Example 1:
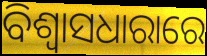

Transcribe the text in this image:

ବିଶ୍ଵାସଧାରାରେ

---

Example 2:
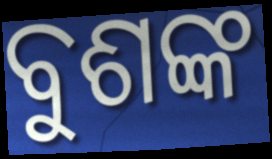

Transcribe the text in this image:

ବୁଶଙ୍କ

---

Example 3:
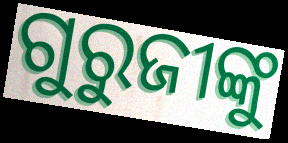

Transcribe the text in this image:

ଗୁରୁଜୀଙ୍କୁ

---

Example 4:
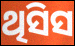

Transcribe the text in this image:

ଥିସିସ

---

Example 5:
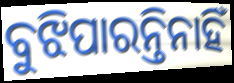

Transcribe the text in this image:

ବୁଝିପାରନ୍ତିନାହିଁ